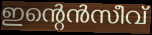
ഇന്റെൻസീവ്